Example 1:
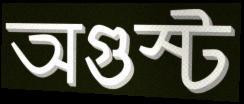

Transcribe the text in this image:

অগুস্ট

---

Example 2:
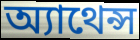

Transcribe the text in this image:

অ্যাথেন্স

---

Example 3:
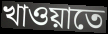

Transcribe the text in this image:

খাওয়াতে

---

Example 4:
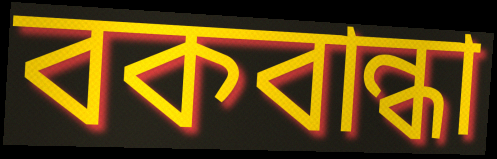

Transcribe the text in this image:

বকবান্ধা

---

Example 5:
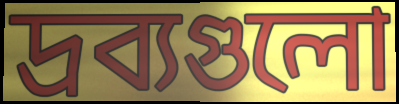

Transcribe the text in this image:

দ্রব্যগুলো